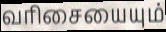
வரிசையையும்